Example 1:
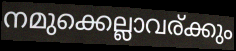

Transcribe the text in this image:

നമുക്കെല്ലാവര്ക്കും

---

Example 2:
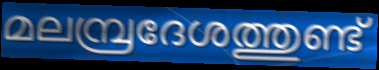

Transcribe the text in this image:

മലമ്പ്രദേശത്തുണ്ട്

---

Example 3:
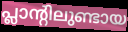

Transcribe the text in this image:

പ്ലാന്റിലുണ്ടായ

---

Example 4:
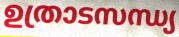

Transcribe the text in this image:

ഉത്രാടസന്ധ്യ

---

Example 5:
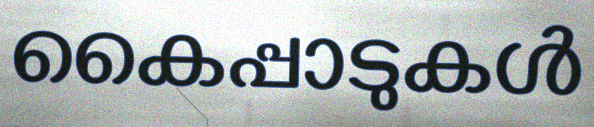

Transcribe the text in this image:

കൈപ്പാടുകൾ